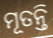
ମୂତନ୍ତି